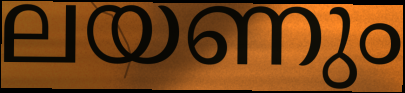
ലയണും